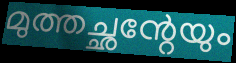
മുത്തച്ഛന്റേയും